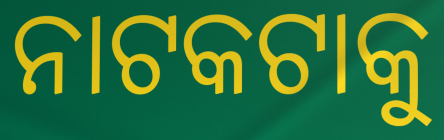
ନାଟକଟାକୁ